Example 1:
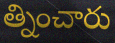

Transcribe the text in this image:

త్నించారు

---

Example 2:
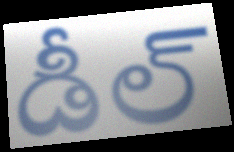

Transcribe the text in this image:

డీల్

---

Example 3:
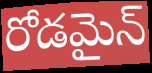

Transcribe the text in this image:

రోడమైన్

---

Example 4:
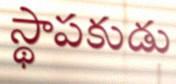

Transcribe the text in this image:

స్థాపకుడు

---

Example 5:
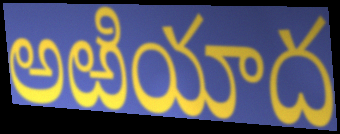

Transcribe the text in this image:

అఱియాద